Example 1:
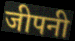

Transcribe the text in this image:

जीपनी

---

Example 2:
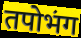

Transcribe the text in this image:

तपोभंग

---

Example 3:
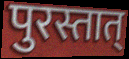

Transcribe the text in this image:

पुरस्तात्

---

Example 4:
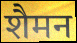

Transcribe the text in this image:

शैमन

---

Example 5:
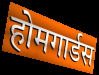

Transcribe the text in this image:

होमगार्डस